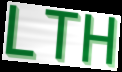
LTH